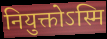
नियुक्तोऽस्मि